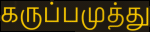
கருப்பமுத்து